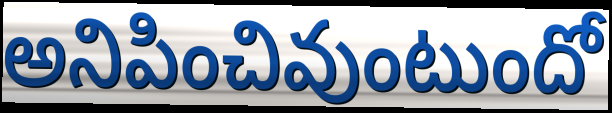
అనిపించివుంటుందో